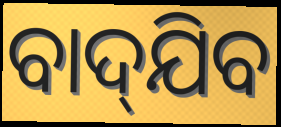
ବାଦ୍‌ଯିବ